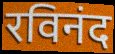
रविनंद